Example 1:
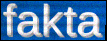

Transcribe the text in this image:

fakta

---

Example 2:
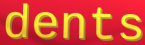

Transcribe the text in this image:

dents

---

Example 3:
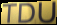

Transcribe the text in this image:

TDU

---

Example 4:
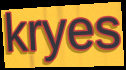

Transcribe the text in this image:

kryes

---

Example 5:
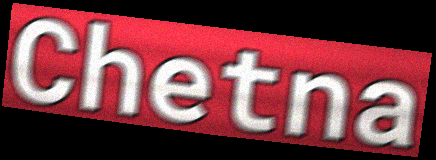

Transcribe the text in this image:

Chetna